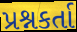
પ્રશ્નકર્તા